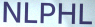
NLPHL